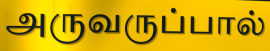
அருவருப்பால்